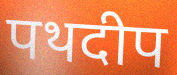
पथदीप